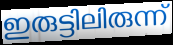
ഇരുട്ടിലിരുന്ന്